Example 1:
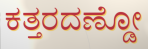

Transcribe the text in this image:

ಕತ್ತರದಣ್ಡೋ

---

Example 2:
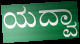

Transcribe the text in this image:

ಯದ್ವಾ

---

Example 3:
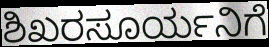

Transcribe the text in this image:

ಶಿಖರಸೂರ್ಯನಿಗೆ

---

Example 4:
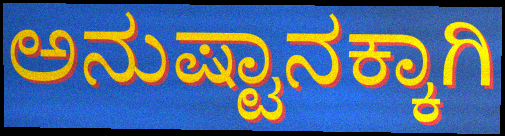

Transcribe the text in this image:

ಅನುಷ್ಟಾನಕ್ಕಾಗಿ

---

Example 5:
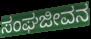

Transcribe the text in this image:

ಸಂಘಜೀವನ